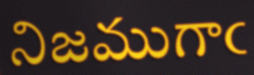
నిజముగాఁ